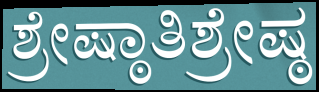
ಶ್ರೇಷ್ಠಾತಿಶ್ರೇಷ್ಠ